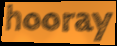
hooray